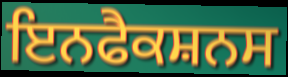
ਇਨਫੈਕਸ਼ਨਸ